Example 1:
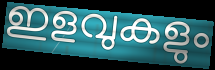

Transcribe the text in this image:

ഇളവുകളും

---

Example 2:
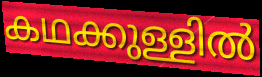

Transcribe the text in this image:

കഥക്കുള്ളിൽ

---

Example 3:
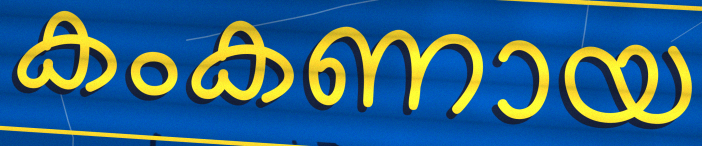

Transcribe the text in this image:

കംകണായ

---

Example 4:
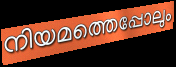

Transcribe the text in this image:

നിയമത്തെപ്പോലും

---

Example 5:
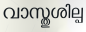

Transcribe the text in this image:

വാസ്തുശില്പ